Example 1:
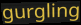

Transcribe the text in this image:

gurgling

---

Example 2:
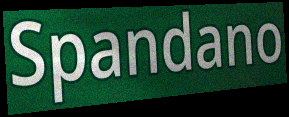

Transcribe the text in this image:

Spandano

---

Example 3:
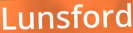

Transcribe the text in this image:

Lunsford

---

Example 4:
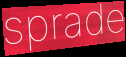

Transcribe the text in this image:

sprade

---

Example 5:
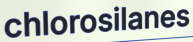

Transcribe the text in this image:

chlorosilanes